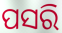
ପସରି